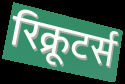
रिक्रूटर्स